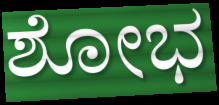
ಶೋಭ